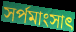
সর্পমাংসাৎ